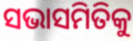
ସଭାସମିତିକୁ